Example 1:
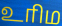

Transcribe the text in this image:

உரிம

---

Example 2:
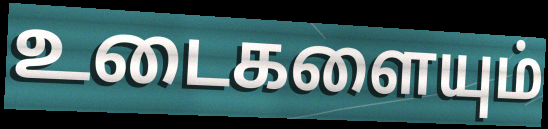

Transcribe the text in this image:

உடைகளையும்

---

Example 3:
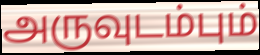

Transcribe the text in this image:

அருவுடம்பும்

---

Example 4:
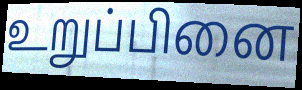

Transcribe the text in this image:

உறுப்பினை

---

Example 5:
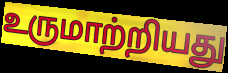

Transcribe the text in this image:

உருமாற்றியது